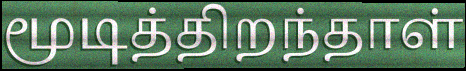
மூடித்திறந்தாள்